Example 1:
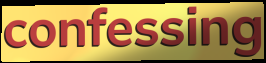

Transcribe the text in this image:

confessing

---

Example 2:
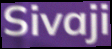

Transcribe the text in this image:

Sivaji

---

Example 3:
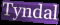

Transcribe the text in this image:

Tyndal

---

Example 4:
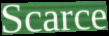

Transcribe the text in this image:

Scarce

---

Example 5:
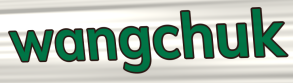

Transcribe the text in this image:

wangchuk